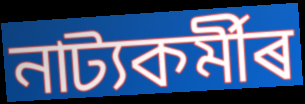
নাট্যকৰ্মীৰ